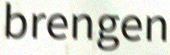
brengen